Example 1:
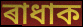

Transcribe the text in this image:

ৰাধাক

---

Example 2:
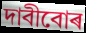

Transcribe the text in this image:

দাবীবোৰ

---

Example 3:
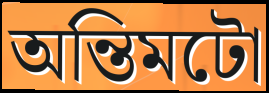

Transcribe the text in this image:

অন্তিমটো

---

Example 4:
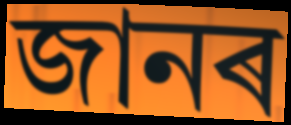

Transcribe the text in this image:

জানৰ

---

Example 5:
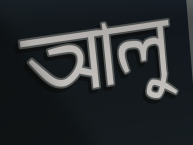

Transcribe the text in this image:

আলু